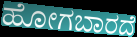
ಹೋಗಬಾರದೆ